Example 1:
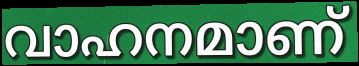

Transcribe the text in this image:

വാഹനമാണ്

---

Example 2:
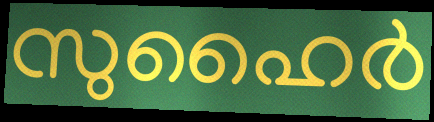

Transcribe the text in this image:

സുഹൈർ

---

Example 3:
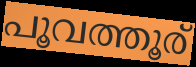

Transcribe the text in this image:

പൂവത്തൂര്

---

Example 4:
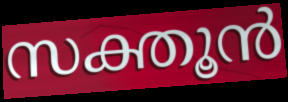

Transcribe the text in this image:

സക്തൂൻ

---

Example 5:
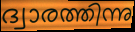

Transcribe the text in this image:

ദ്വാരത്തിന്നു